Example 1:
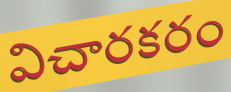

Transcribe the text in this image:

విచారకరం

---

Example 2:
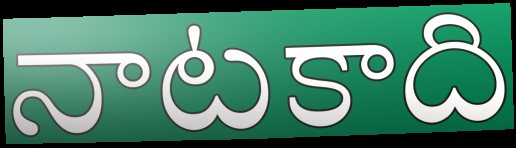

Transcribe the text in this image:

నాటకాది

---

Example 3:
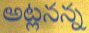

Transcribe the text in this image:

అట్లనన్న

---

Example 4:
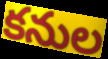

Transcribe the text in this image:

కనుల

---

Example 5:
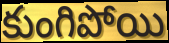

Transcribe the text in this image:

కుంగిపోయి